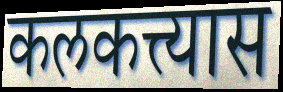
कलकत्त्यास